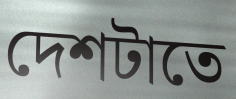
দেশটাতে